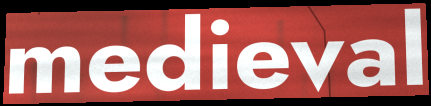
medieval